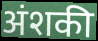
अंशकी